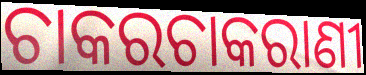
ଚାକରଚାକରାଣୀ